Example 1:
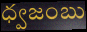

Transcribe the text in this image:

ధ్వజంబు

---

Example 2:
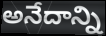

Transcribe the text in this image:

అనేదాన్ని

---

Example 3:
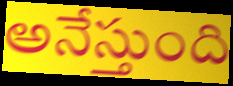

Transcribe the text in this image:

అనేస్తుంది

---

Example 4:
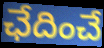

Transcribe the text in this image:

ఛేదించే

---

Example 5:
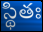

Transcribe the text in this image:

స్థితః